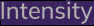
Intensity